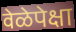
वेळेपेक्षा